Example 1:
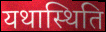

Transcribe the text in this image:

यथास्थिति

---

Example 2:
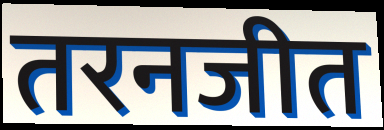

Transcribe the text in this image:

तरनजीत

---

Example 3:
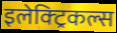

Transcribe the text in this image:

इलेक्ट्रिकल्‍स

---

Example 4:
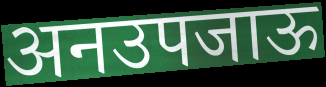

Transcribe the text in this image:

अनउपजाऊ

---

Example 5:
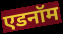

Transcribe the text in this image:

एडनॉम